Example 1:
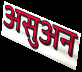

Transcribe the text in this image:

असुअन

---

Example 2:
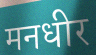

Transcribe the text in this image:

मनधीर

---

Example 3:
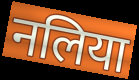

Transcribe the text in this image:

नलिया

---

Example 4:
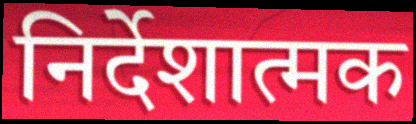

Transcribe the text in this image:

निर्देशात्मक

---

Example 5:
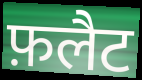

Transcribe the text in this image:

फ़लैट